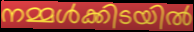
നമ്മൾക്കിടയിൽ